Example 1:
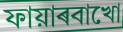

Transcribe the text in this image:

ফায়াৰবাখো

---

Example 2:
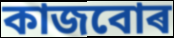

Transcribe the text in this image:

কাজবোৰ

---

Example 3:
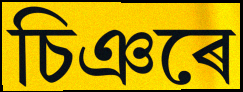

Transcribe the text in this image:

চিঞৰে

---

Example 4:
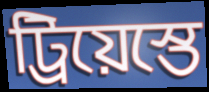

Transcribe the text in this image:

ট্ৰিয়েস্তে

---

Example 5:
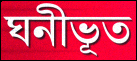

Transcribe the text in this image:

ঘনীভূত